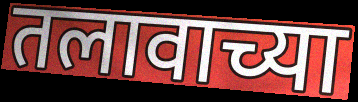
तलावाच्या